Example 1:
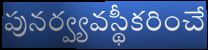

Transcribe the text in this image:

పునర్వ్యవస్థీకరించే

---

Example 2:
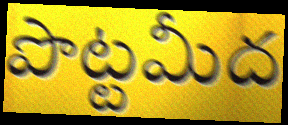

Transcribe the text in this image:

పొట్టమీద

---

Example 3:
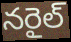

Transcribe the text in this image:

నరైల్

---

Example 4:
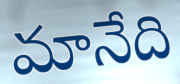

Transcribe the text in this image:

మానేది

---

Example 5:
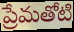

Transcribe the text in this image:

ప్రేమతోటి